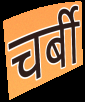
चर्बी